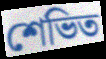
শেভিত